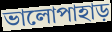
ভালোপাহাড়